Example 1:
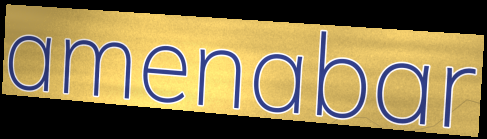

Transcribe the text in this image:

amenabar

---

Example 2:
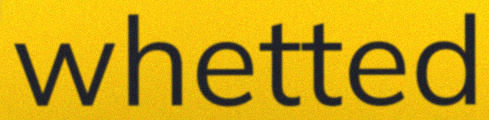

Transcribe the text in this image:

whetted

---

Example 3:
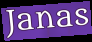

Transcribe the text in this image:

Janas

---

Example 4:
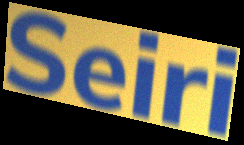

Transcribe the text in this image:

Seiri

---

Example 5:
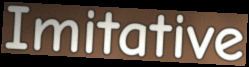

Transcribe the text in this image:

Imitative